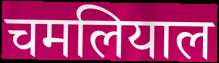
चमलियाल